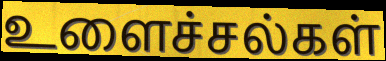
உளைச்சல்கள்